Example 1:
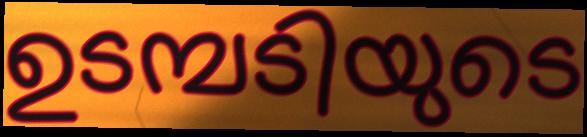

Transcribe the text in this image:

ഉടമ്പടിയുടെ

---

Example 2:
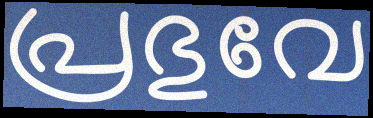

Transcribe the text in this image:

പ്രഭുവേ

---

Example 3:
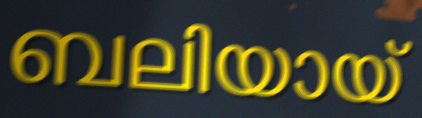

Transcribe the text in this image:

ബലിയായ്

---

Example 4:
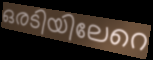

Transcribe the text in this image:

ഒരടിയിലേറെ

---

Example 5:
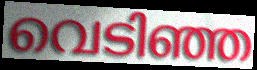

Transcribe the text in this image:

വെടിഞ്ഞ